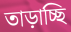
তাড়াচ্ছি